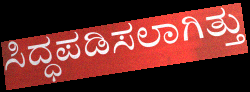
ಸಿದ್ಧಪಡಿಸಲಾಗಿತ್ತು